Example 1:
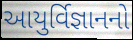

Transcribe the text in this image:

આયુર્વિજ્ઞાનનો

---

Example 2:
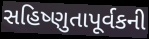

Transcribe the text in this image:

સહિષ્ણુતાપૂર્વકની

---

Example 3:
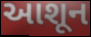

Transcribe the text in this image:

આશૂન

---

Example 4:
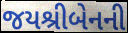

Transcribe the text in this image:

જયશ્રીબેનની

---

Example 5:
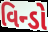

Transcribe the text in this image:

વિન્ડો